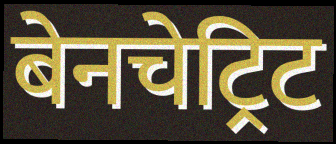
बेनचेट्रिट